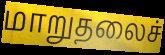
மாறுதலைச்